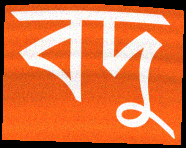
বদু